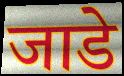
जाडे